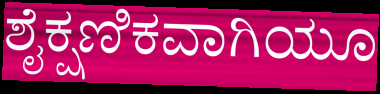
ಶೈಕ್ಷಣಿಕವಾಗಿಯೂ